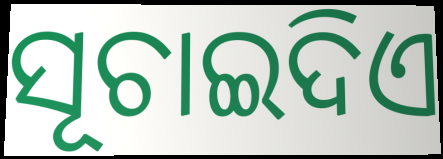
ସୂଚାଇଦିଏ